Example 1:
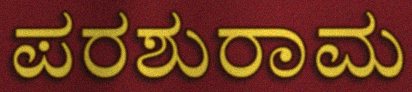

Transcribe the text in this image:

ಪರಶುರಾಮ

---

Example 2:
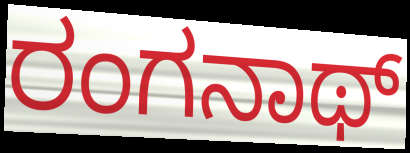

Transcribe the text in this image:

ರಂಗನಾಥ್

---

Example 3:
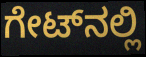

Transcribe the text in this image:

ಗೇಟ್‌ನಲ್ಲಿ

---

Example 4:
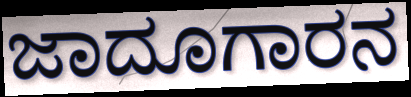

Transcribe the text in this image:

ಜಾದೂಗಾರನ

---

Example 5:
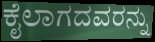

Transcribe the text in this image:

ಕೈಲಾಗದವರನ್ನು